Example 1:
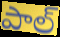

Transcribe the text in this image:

పాల్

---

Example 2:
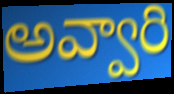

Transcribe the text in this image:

అవ్వారి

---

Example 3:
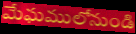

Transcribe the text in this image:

మేఘములోనుండి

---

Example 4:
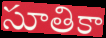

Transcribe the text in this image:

సూతికా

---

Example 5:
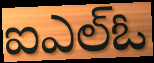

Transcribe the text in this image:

ఐఎల్ఓ